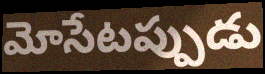
మోసేటప్పుడు